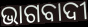
ଭାଗବାଦୀ